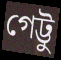
গেট্টু